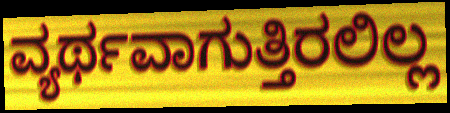
ವ್ಯರ್ಥವಾಗುತ್ತಿರಲಿಲ್ಲ